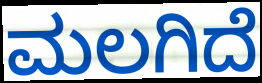
ಮಲಗಿದೆ